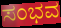
ಸಂಭವ